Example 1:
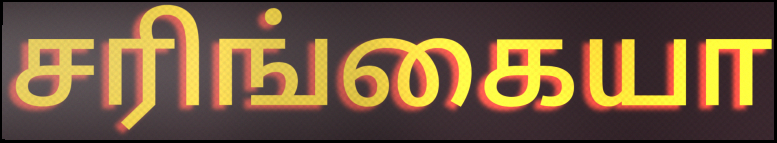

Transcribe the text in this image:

சரிங்கையா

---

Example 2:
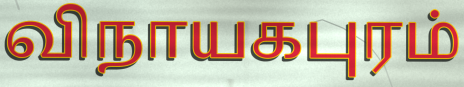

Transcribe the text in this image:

விநாயகபுரம்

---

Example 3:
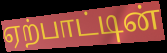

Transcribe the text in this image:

ஏற்பாட்டின்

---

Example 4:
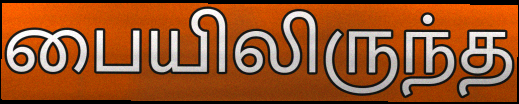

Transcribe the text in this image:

பையிலிருந்த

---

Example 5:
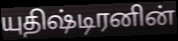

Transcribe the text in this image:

யுதிஷ்டிரனின்